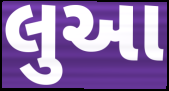
લુઆ